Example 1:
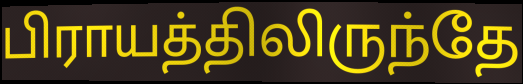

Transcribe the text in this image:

பிராயத்திலிருந்தே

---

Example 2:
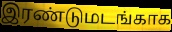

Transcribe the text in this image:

இரண்டுமடங்காக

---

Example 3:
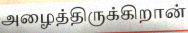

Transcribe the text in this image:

அழைத்திருக்கிறான்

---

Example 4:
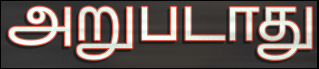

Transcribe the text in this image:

அறுபடாது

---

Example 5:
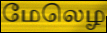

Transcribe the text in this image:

மேலெழ